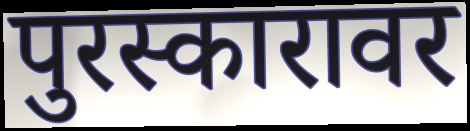
पुरस्कारावर